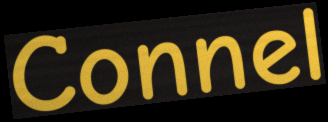
Connel